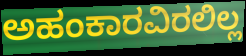
ಅಹಂಕಾರವಿರಲಿಲ್ಲ